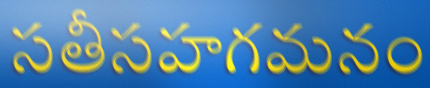
సతీసహగమనం